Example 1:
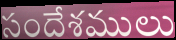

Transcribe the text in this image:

సందేశములు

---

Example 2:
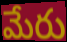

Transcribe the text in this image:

మేరు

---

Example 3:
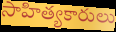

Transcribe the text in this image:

సాహిత్యకారులు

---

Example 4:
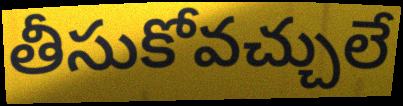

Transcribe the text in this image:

తీసుకోవచ్చులే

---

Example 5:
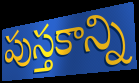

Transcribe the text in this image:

పుస్తకాన్ని